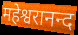
महेश्वरानन्द